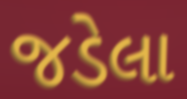
જડેલા